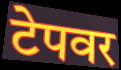
टेपवर